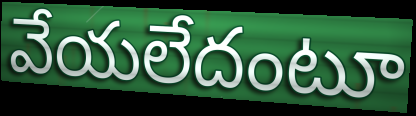
వేయలేదంటూ